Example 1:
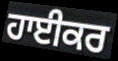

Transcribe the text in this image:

ਹਾਈਕਰ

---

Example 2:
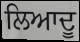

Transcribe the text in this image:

ਲਿਆਦੂ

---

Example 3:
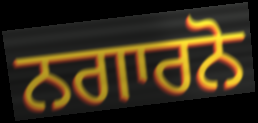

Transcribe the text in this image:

ਨਗਾਰਨੋ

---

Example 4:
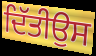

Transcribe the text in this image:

ਦਿੱਤੀਉਸ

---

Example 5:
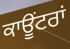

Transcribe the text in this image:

ਕਾਊਂਟਰਾਂ